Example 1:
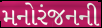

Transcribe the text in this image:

મનોરંજનની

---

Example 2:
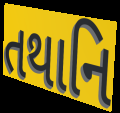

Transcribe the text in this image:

તથાનિ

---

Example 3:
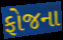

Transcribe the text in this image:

ફોજના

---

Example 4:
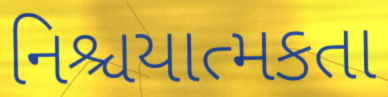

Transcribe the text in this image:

નિશ્ચયાત્મકતા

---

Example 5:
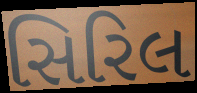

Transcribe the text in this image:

સિરિલ